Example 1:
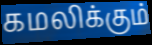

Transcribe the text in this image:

கமலிக்கும்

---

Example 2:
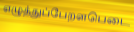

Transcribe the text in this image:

எழுத்துப்பேறளபெடை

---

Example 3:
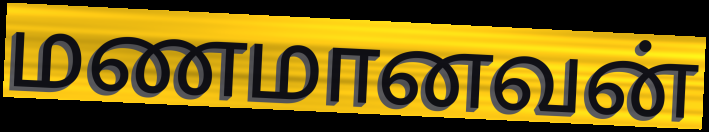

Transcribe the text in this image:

மணமானவன்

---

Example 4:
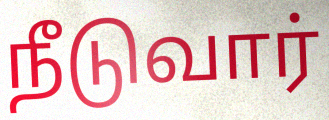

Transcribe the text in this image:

நீடுவார்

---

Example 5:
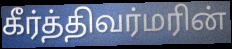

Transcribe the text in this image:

கீர்த்திவர்மரின்